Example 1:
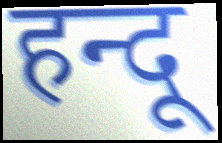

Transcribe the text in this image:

हन्दू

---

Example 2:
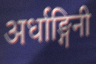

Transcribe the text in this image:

अर्धाङ्गिनी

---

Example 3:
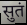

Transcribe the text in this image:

सुतं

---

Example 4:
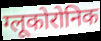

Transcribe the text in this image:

ग्लूकोरोनिक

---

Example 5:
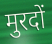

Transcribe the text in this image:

मुरदों